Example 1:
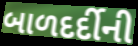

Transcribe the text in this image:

બાળદર્દીની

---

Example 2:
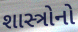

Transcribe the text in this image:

શાસ્ત્રોનો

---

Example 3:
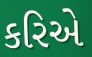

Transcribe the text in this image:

કરિએ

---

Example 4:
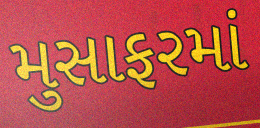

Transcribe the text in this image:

મુસાફરમાં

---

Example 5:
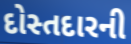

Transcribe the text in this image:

દોસ્તદારની